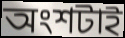
অংশটাই